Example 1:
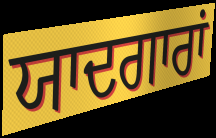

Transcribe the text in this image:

ਯਾਦਗਾਰਾਂ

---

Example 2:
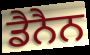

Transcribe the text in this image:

ਡੈਨੈਨ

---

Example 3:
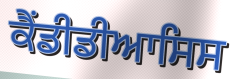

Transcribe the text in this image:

ਕੈਂਡੀਡੀਆਸਿਸ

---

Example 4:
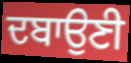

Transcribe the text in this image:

ਦਬਾਉਣੀ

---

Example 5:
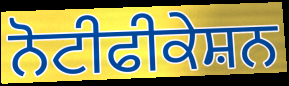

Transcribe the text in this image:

ਨੋਟੀਫੀਕੇਸ਼ਨ